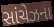
સાંચેઝના